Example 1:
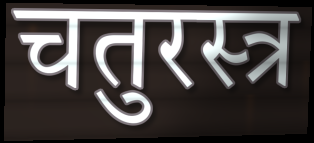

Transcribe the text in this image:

चतुरस्त्र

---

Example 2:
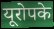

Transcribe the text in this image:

यूरोपके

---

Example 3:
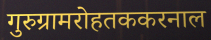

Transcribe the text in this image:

गुरुग्रामरोहतककरनाल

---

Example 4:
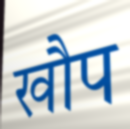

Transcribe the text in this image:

खौप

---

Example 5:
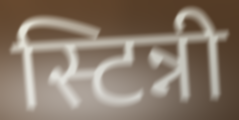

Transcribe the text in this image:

स्टिन्नी